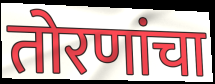
तोरणांचा